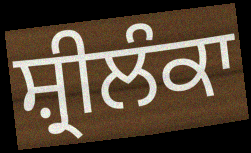
ਸ਼੍ਰੀਲੰਕਾ